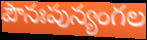
పౌనఃపున్యంగల